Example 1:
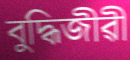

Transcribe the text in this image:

বুদ্ধিজীৱী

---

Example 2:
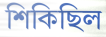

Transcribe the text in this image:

শিকিছিল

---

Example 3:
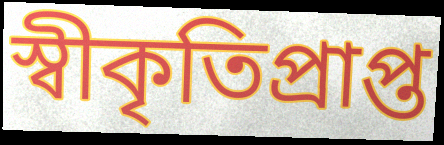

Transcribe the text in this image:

স্বীকৃতিপ্ৰাপ্ত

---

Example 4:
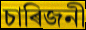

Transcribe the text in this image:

চাৰিজনী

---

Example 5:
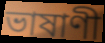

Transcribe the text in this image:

ভাষাণী